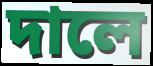
দালে